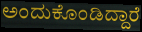
ಅಂದುಕೊಂಡಿದ್ದಾರೆ